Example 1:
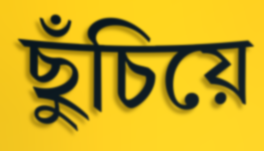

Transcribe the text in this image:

ছুঁচিয়ে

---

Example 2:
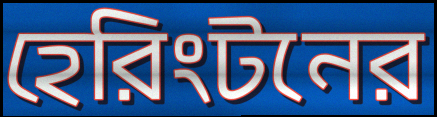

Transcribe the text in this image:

হেরিংটনের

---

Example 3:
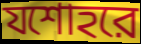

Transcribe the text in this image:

যশোহরে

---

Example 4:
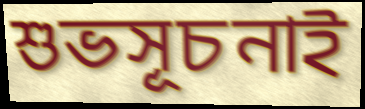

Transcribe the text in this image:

শুভসূচনাই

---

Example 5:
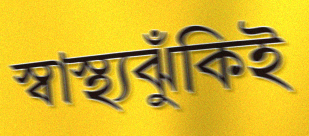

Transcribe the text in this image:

স্বাস্থ্যঝুঁকিই